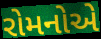
રોમનોએ